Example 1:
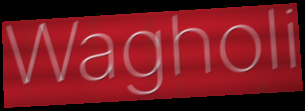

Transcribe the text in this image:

Wagholi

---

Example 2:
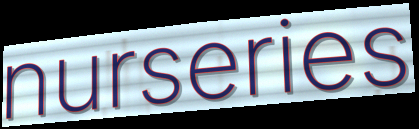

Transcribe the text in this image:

nurseries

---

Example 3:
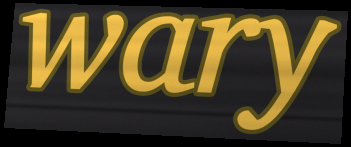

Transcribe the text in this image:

wary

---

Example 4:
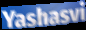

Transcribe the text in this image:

Yashasvi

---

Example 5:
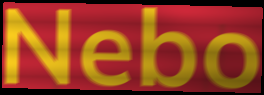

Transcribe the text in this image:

Nebo